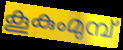
കൂകുംമുമ്പ്